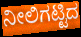
ನೀಲಿಗಟ್ಟಿದ